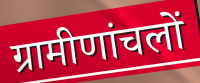
ग्रामीणांचलों